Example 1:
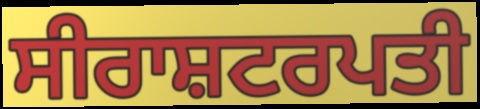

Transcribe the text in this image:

ਸੀਰਾਸ਼ਟਰਪਤੀ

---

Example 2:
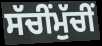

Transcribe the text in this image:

ਸੱਚੀਂਮੁੱਚੀਂ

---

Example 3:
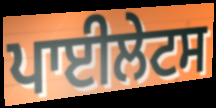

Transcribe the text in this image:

ਪਾਈਲੇਟਸ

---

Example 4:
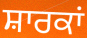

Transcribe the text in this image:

ਸ਼ਾਰਕਾਂ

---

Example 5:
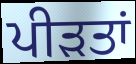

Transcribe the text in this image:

ਪੀੜਤਾਂ